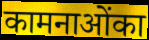
कामनाओंका